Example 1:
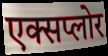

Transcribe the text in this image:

एक्‍सप्लोर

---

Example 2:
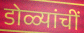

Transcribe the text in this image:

डोळ्यांचीं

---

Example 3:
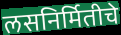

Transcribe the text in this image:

लसनिर्मितीचे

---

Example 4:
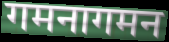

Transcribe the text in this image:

गमनागमन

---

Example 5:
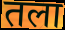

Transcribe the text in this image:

तला